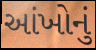
આંખોનું